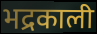
भद्रकाली